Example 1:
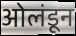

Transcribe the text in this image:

ओलंडून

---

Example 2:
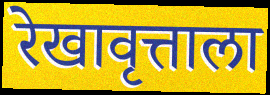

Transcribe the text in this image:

रेखावृत्ताला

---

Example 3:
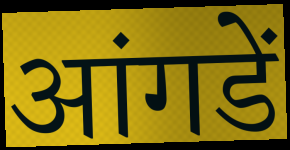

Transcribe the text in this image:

आंगडें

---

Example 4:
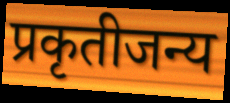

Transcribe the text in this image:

प्रकृतीजन्य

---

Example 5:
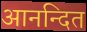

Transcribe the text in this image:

आनन्दित